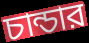
চান্ডার